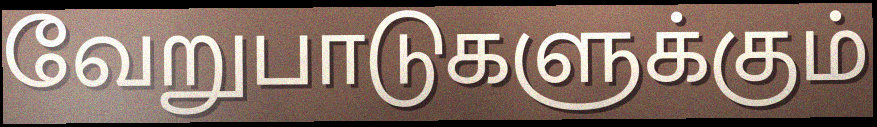
வேறுபாடுகளுக்கும்